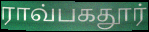
ராவ்பகதூர்